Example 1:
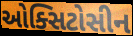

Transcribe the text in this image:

ઓક્સિટોસીન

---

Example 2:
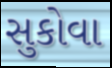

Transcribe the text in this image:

સુકોવા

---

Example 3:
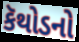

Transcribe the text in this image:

કૅથોડનો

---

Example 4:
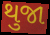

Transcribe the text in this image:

થુજા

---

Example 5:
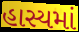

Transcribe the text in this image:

હાસ્યમાં